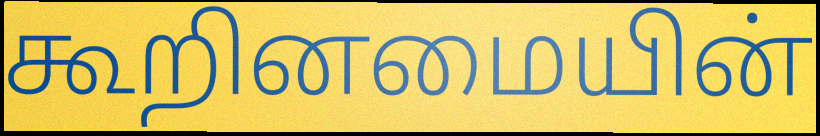
கூறினமையின்